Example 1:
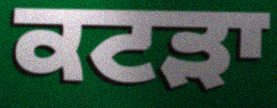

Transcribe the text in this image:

ਕਟੜਾ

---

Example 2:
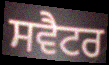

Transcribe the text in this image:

ਸਵੈਟਰ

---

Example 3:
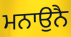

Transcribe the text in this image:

ਮਨਾਉਨੈ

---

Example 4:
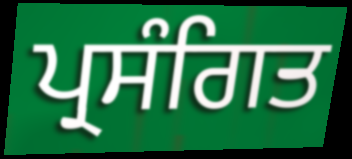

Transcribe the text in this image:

ਪ੍ਰਸੰਗਿਤ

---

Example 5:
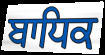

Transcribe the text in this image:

ਬਾਧਿਕ